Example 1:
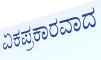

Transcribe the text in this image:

ಏಕಪ್ರಕಾರವಾದ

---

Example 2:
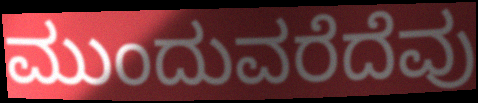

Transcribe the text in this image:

ಮುಂದುವರೆದೆವು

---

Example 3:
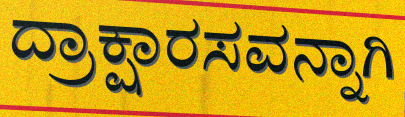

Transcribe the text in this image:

ದ್ರಾಕ್ಷಾರಸವನ್ನಾಗಿ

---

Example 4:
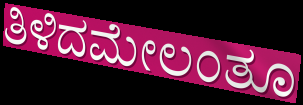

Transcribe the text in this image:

ತಿಳಿದಮೇಲಂತೂ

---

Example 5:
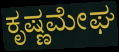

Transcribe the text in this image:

ಕೃಷ್ಣಮೇಘ